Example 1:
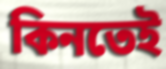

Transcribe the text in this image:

কিনতেই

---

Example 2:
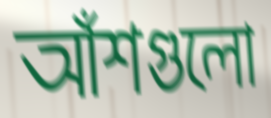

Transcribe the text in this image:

আঁশগুলো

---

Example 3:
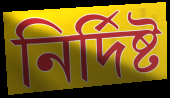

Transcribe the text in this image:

নির্দিষ্ট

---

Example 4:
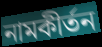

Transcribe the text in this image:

নামকীর্তন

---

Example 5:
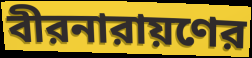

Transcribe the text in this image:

বীরনারায়ণের